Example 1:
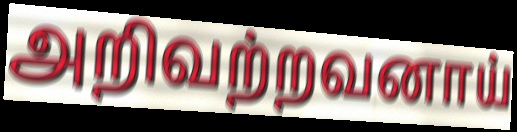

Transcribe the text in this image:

அறிவற்றவனாய்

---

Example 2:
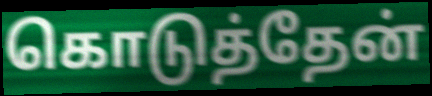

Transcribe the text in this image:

கொடுத்தேன்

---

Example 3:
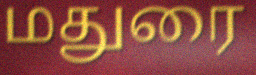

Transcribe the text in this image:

மதுரை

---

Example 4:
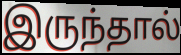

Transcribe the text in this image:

இருந்தால்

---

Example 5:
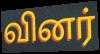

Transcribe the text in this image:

வினர்